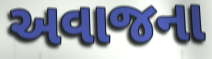
અવાજના